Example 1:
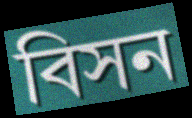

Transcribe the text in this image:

বিসন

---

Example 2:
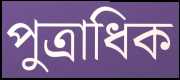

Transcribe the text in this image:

পুত্রাধিক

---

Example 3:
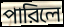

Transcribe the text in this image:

পারিলে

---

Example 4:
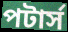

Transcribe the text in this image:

পটার্স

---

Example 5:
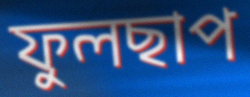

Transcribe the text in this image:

ফুলছাপ